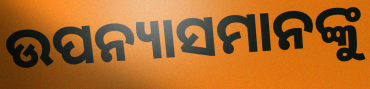
ଉପନ୍ୟାସମାନଙ୍କୁ